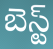
బెస్ట్